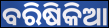
ବରିଷିକିଆ